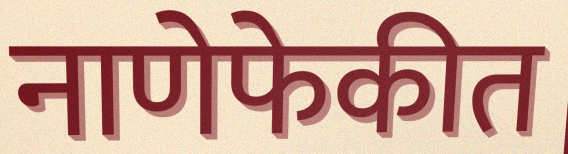
नाणेफेकीत